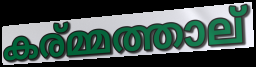
കര്മ്മത്താല്